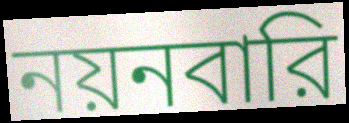
নয়নবারি